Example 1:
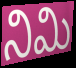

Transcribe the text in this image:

నిమి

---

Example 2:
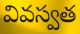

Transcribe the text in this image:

వివస్వత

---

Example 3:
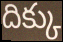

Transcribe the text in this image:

దిక్కు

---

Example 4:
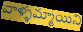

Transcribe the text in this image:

వాళ్ళమ్మాయిని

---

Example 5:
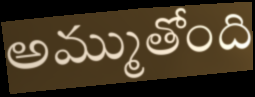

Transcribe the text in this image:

అమ్ముతోంది